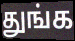
துங்க